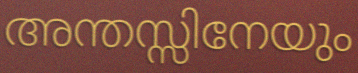
അന്തസ്സിനേയും